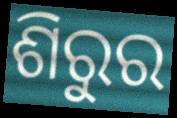
ଶିରୁର